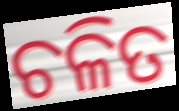
ଚଳିତ